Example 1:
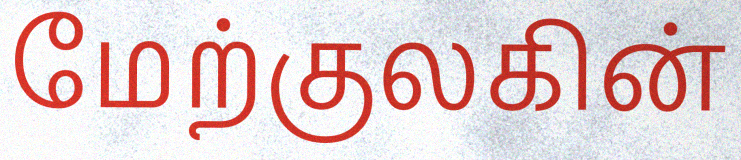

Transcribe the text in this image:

மேற்குலகின்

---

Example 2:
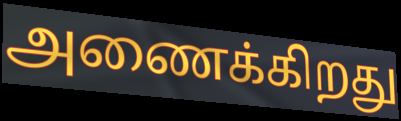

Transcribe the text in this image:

அணைக்கிறது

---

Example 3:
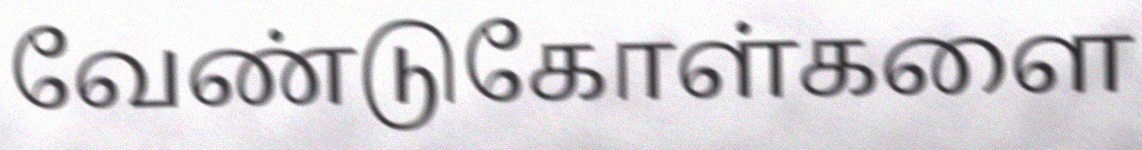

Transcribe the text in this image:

வேண்டுகோள்களை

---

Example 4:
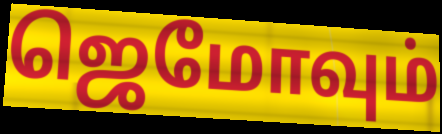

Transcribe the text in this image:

ஜெமோவும்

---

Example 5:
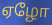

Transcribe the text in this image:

ஏழோ